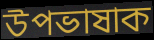
উপভাষাক